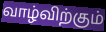
வாழ்விற்கும்